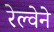
रेल्वेने